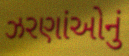
ઝરણાંઓનું